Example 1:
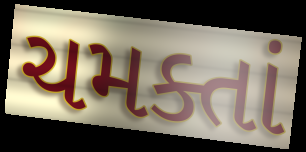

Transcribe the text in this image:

ચમક્તાં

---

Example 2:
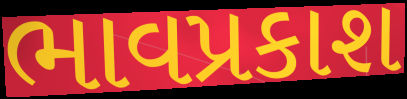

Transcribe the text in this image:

ભાવપ્રકાશ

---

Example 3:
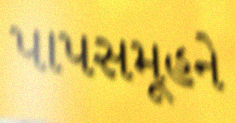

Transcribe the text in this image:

પાપસમૂહને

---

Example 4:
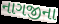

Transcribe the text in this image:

નાગજીના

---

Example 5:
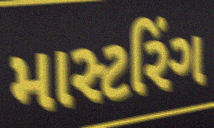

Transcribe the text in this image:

માસ્ટરિંગ